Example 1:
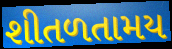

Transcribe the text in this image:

શીતળતામય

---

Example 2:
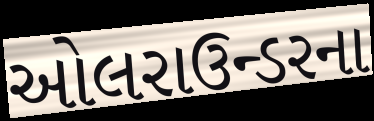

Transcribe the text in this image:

ઓલરાઉન્ડરના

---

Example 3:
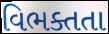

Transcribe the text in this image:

વિભક્તતા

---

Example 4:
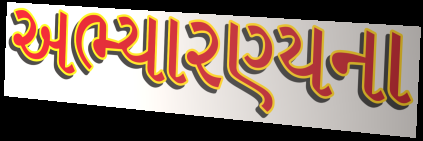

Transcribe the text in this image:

અભ્યારણ્યના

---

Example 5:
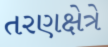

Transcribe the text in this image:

તરણક્ષેત્રે